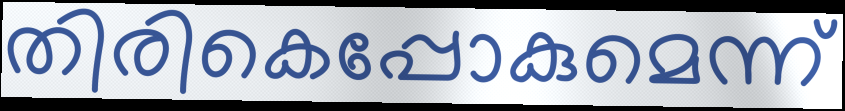
തിരികെപ്പോകുമെന്ന്